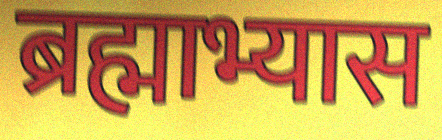
ब्रह्माभ्यास